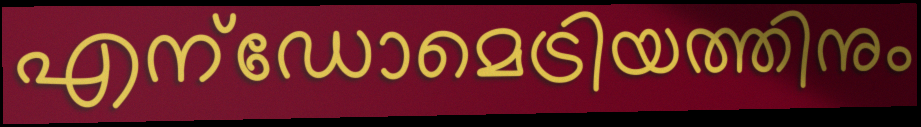
എന്ഡോമെട്രിയത്തിനും